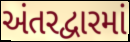
અંતરદ્વારમાં